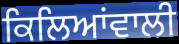
ਕਿਲਿਆਂਵਾਲੀ